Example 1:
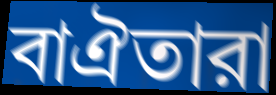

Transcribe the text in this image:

বাঐতারা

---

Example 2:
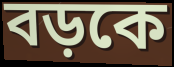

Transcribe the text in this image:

বড়কে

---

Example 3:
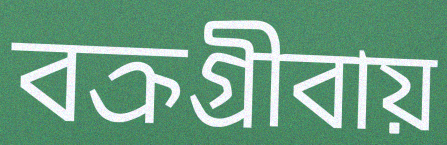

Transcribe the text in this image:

বক্রগ্রীবায়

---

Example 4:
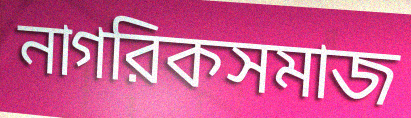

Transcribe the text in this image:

নাগরিকসমাজ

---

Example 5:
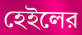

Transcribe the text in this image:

হেইলের